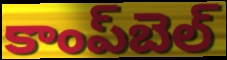
కాంప్‌బెల్